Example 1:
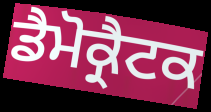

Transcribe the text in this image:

ਡੈਮੋਕ੍ਰੈਟਕ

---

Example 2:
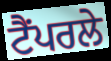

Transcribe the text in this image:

ਟੈਂਪਰਲੇ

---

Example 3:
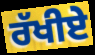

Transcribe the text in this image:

ਰੱਖੀਏ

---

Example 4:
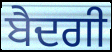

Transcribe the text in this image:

ਬੈਦਗੀ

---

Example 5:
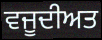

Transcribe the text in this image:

ਵਜੂਦੀਅਤ